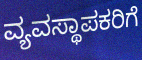
ವ್ಯವಸ್ಥಾಪಕರಿಗೆ